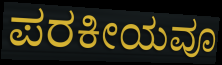
ಪರಕೀಯವೂ